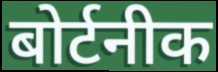
बोर्टनीक